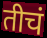
तीचं